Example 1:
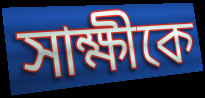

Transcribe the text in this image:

সাক্ষীকে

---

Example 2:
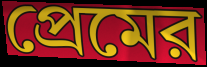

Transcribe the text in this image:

প্রেমের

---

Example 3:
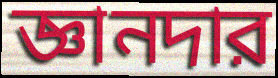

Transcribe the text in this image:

জ্ঞানদার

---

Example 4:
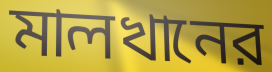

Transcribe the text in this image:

মালখানের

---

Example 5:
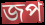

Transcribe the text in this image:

জপ